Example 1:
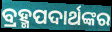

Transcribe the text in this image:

ବ୍ରହ୍ମପଦାର୍ଥଙ୍କର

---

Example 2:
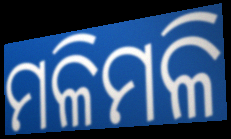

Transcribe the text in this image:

ମଳିମଳି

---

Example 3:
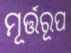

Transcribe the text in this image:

ମୂର୍ତ୍ତରୂପ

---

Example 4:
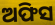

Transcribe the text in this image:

ଅଫିସ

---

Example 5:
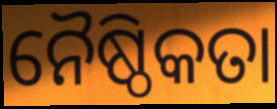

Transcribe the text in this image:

ନୈଷ୍ଠିକତା